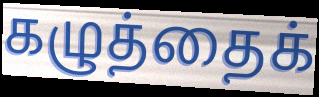
கழுத்தைக்